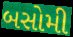
બસોમી